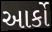
આર્કો